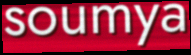
soumya